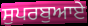
ਸੁਪਰਬੁਆਏ